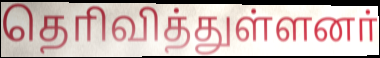
தெரிவித்துள்ளனர்